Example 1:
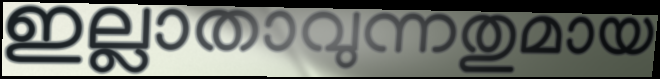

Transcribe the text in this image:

ഇല്ലാതാവുന്നതുമായ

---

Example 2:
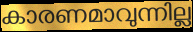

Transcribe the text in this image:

കാരണമാവുന്നില്ല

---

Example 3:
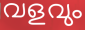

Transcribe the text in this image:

വളവും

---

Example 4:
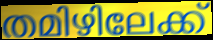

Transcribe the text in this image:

തമിഴിലേക്ക്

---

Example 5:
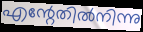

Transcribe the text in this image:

എന്റേതിൽനിന്നു